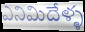
ఎనిమిదేళ్ళ